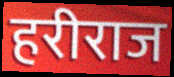
हरीराज